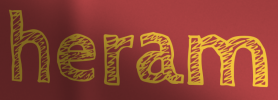
heram